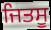
ਜਿਤਸੂ